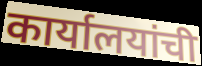
कार्यालयांची